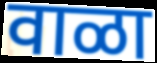
वाळा